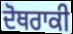
ਦੋਥਰਾਕੀ